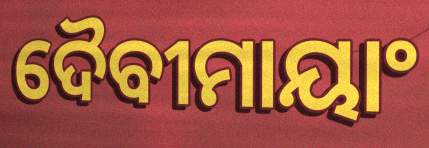
ଦୈବୀମାୟାଂ